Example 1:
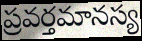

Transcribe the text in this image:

ప్రవర్తమానస్య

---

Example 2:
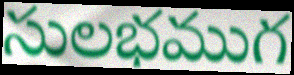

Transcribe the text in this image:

సులభముగ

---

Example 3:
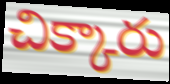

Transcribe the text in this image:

చిక్కారు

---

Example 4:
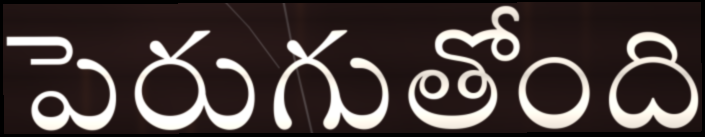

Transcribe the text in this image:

పెరుగుతోంది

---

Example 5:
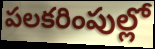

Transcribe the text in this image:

పలకరింపుల్లో